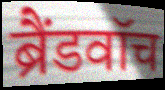
ब्रैंडवॉच